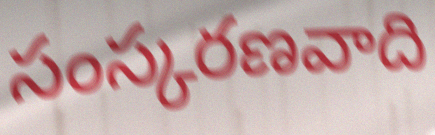
సంస్కరణవాది